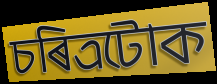
চৰিত্ৰটোক